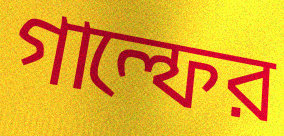
গাল্ফের